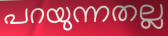
പറയുന്നതല്ല